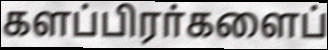
களப்பிரர்களைப்